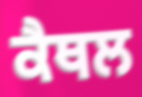
ਕੈਥਲ